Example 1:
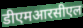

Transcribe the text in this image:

डीएमआरसीएल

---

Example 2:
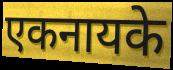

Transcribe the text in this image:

एकनायके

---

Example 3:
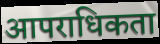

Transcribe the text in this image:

आपराधिकता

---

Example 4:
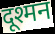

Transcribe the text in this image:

दूश्मन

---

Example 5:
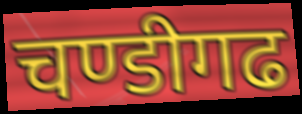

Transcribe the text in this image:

चण्डीगढ